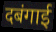
दबंगाई